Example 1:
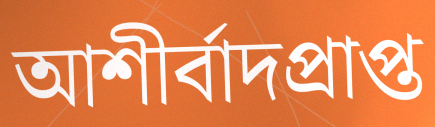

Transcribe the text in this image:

আশীর্বাদপ্রাপ্ত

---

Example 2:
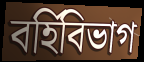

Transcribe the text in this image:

বর্হিবিভাগ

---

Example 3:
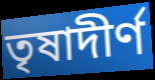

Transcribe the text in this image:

তৃষাদীর্ণ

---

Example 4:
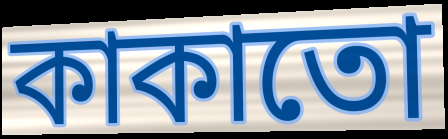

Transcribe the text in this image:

কাকাতো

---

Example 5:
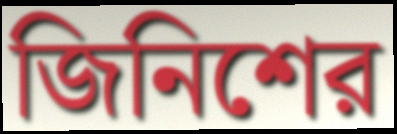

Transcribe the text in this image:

জিনিশের